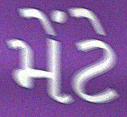
મેંટે